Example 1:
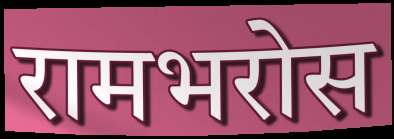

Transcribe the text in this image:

रामभरोस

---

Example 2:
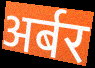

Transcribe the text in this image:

अर्बर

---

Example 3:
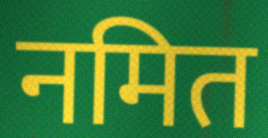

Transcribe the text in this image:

नमित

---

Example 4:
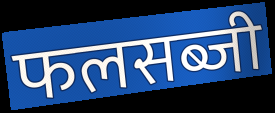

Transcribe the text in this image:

फलसब्जी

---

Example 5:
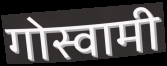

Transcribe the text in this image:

गोस्वामी